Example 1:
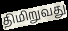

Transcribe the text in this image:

திமிறுவது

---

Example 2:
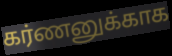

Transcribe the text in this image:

கர்ணனுக்காக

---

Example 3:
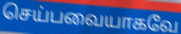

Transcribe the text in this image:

செய்பவையாகவே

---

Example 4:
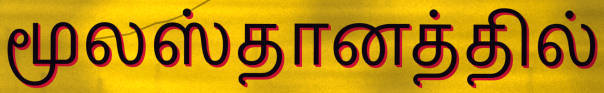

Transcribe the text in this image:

மூலஸ்தானத்தில்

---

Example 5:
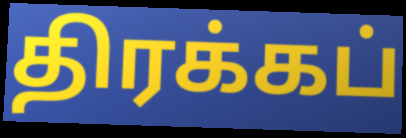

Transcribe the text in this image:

திரக்கப்